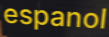
espanol